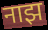
नाझ